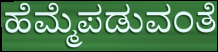
ಹೆಮ್ಮೆಪಡುವಂತೆ